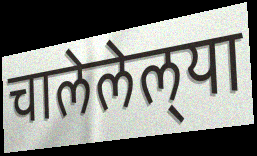
चालेलेल्या